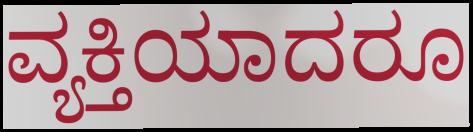
ವ್ಯಕ್ತಿಯಾದರೂ